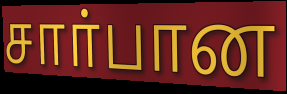
சார்பான